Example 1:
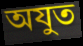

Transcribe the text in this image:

অযুত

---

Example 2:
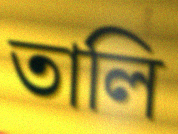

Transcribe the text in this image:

তালি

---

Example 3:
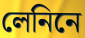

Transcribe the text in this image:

লেনিনে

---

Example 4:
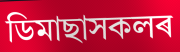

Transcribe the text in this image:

ডিমাছাসকলৰ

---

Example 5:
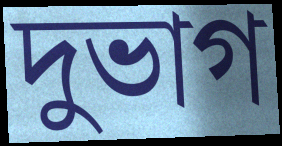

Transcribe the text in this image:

দুভাগ